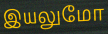
இயலுமோ